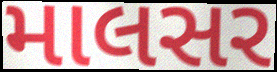
માલસર